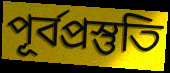
পূর্বপ্রস্তুতি